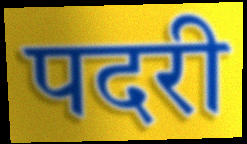
पदरी